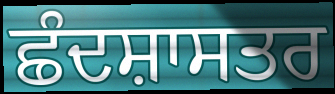
ਛੰਦਸ਼ਾਸਤਰ